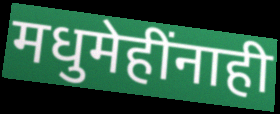
मधुमेहींनाही